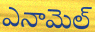
ఎనామెల్